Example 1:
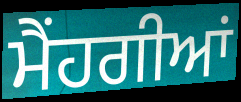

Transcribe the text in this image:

ਮੈਂਹਗੀਆਂ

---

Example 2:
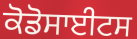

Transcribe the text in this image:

ਕੋਡੋਸਾਈਟਸ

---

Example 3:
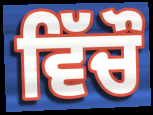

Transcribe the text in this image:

ਵਿੱਚੌ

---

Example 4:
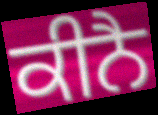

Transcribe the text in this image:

ਕੀਨੈ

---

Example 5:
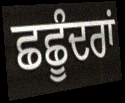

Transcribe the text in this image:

ਛਛੂੰਦਰਾਂ